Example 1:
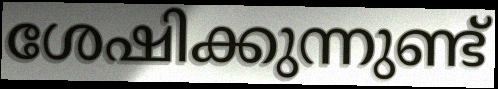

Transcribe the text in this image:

ശേഷിക്കുന്നുണ്ട്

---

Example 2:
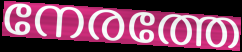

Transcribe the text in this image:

നേരത്തേ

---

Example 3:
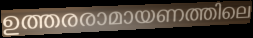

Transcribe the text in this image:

ഉത്തരരാമായണത്തിലെ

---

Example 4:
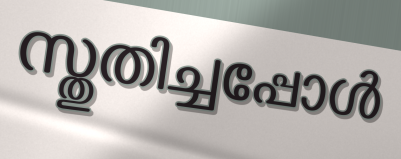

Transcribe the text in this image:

സ്തുതിച്ചപ്പോൾ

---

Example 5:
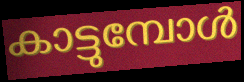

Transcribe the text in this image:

കാട്ടുമ്പോൾ